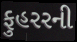
ફુહરરની